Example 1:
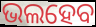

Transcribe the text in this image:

ଭଲହେବ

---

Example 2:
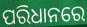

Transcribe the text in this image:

ପରିଧାନରେ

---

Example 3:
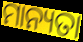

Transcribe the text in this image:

ମାନ୍ୟତା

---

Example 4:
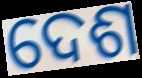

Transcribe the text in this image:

ଦେଶ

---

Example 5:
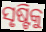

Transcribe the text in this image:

ସୃଷ୍ଟିକୁ